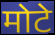
मोटे